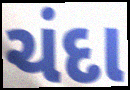
ચંદા